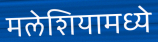
मलेशियामध्ये